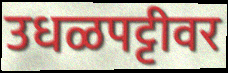
उधळपट्टीवर